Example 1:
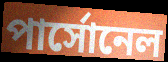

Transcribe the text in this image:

পার্সোনেল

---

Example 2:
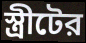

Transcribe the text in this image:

স্ত্রীটের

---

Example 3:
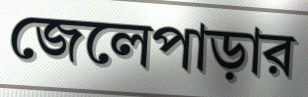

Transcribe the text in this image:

জেলেপাড়ার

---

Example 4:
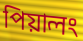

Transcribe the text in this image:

পিয়ালং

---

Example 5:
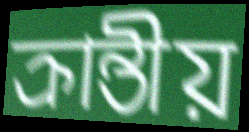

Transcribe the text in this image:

ক্রান্তীয়